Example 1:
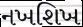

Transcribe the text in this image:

નખશિખ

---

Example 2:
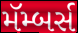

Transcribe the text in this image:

મૅમ્બર્સ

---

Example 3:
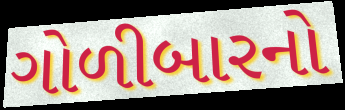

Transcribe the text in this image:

ગોળીબારનો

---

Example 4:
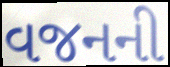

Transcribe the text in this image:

વજનની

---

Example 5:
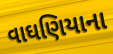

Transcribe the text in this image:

વાઘણિયાના